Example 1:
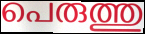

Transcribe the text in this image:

പെരുത്തു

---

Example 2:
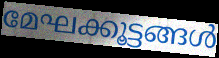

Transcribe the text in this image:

മേഘക്കൂട്ടങ്ങൾ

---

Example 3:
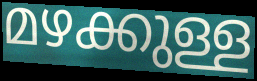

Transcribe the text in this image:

മഴക്കുള്ള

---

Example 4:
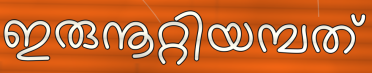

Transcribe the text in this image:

ഇരുനൂറ്റിയമ്പത്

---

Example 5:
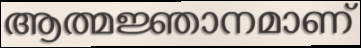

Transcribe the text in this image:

ആത്മജ്ഞാനമാണ്